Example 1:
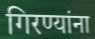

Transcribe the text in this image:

गिरण्यांना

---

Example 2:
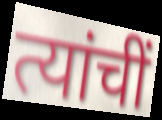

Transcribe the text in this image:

त्यांचीं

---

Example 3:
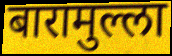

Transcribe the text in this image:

बारामुल्ला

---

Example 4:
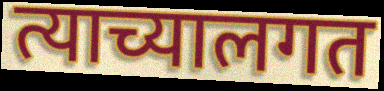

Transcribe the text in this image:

त्याच्यालगत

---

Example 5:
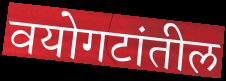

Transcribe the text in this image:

वयोगटांतील